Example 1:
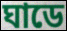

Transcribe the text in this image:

ঘাডে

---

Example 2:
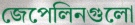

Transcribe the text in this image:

জেপেলিনগুলো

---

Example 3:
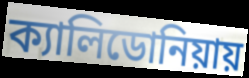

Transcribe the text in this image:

ক্যালিডোনিয়ায়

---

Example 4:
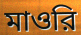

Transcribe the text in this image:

মাওরি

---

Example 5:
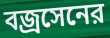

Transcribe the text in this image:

বজ্রসেনের